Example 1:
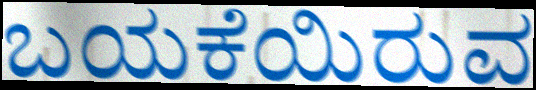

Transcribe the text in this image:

ಬಯಕೆಯಿರುವ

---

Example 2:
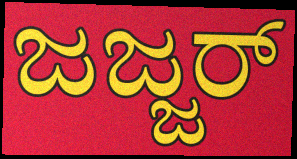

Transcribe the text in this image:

ಜಜ್ಜರ್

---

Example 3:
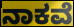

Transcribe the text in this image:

ನಾಕವೆ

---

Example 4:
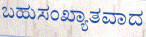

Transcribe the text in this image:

ಬಹುಸಂಖ್ಯಾತವಾದ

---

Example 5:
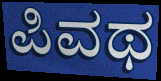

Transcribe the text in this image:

ಪಿವಥ